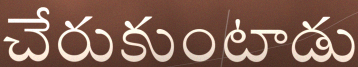
చేరుకుంటాడు